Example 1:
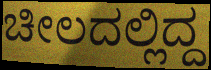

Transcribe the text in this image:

ಚೀಲದಲ್ಲಿದ್ದ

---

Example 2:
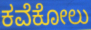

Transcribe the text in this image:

ಕವೆಕೋಲು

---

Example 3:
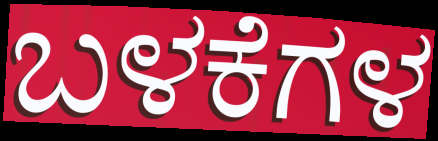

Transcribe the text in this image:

ಬಳಕೆಗಳ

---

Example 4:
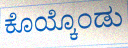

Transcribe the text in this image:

ಕೊಯ್ಕೊಂಡು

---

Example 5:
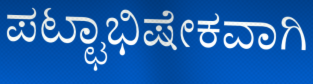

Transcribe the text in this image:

ಪಟ್ಟಾಭಿಷೇಕವಾಗಿ